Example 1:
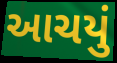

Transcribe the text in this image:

આચયું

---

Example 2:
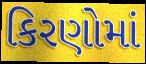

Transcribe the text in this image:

કિરણોમાં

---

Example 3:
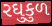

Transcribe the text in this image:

રઘુકુળ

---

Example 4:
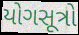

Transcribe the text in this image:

યોગસૂત્રો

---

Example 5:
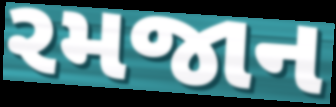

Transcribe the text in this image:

રમજાન